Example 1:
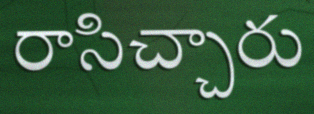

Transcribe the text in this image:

రాసిచ్చారు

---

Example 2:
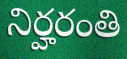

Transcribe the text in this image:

నిర్హరంతి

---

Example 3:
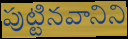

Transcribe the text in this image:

పుట్టినవానిని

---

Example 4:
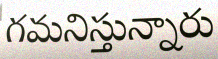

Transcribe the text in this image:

గమనిస్తున్నారు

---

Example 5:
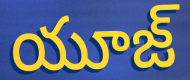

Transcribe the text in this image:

యూజ్